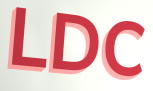
LDC